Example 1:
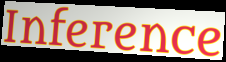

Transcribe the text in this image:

Inference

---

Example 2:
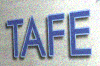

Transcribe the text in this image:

TAFE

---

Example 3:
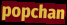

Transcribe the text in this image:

popchan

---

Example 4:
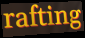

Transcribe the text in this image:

rafting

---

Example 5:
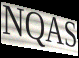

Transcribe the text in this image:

NQAS